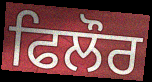
ਫਿਲੌਰ